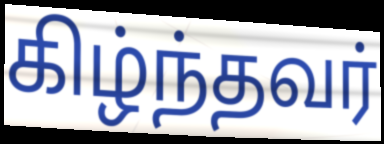
கிழ்ந்தவர்